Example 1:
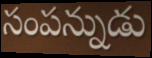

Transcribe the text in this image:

సంపన్నుడు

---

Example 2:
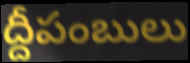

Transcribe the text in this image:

ద్దీపంబులు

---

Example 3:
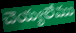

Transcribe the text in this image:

చెయ్యలేము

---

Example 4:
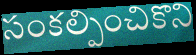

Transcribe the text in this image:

సంకల్పించికొని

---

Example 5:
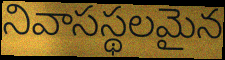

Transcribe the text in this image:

నివాసస్థలమైన